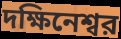
দক্ষিনেশ্বর